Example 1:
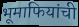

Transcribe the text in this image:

भूमाफियांची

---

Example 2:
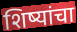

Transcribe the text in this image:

शिष्यांचा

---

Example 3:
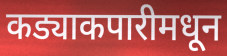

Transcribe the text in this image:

कड्याकपारीमधून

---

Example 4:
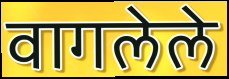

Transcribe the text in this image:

वागलेले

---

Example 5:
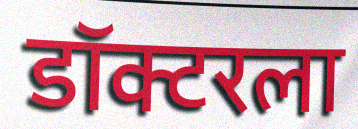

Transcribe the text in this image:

डॉक्टरला